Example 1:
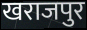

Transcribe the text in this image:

खराजपुर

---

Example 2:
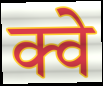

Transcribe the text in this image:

क्वे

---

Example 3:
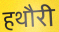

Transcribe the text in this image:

हथौरी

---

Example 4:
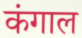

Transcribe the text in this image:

कंगाल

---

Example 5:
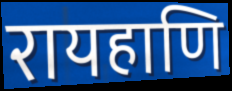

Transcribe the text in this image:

रायहाणि